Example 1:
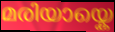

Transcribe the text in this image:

മരിയായ്കെ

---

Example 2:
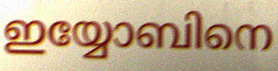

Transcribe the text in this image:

ഇയ്യോബിനെ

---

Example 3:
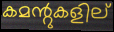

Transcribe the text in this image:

കമന്റുകളില്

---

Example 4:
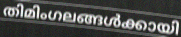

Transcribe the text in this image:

തിമിംഗലങ്ങൾക്കായി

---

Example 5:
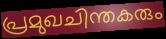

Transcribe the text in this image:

പ്രമുഖചിന്തകരും